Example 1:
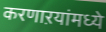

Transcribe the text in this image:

करणाऱयांमध्ये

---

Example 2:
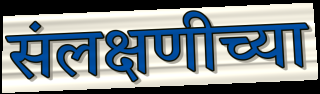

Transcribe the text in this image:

संलक्षणीच्या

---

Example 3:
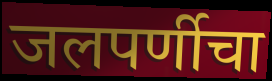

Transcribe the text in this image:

जलपर्णीचा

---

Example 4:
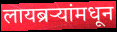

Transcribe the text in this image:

लायब्रऱ्यांमधून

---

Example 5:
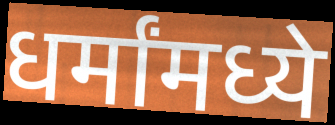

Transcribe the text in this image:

धर्मांमध्ये